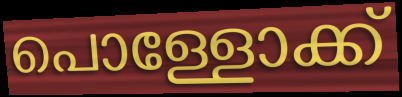
പൊള്ളോക്ക്